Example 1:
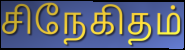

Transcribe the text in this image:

சிநேகிதம்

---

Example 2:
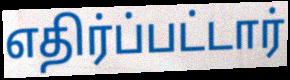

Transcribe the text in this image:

எதிர்ப்பட்டார்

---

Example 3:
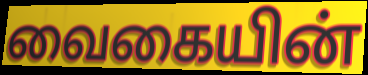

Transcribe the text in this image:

வைகையின்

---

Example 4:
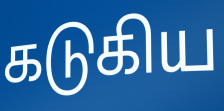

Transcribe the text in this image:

கடுகிய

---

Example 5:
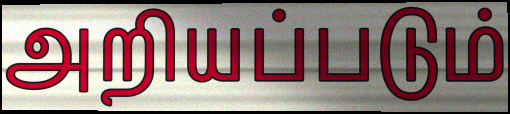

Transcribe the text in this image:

அறியப்படும்